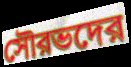
সৌরভদের